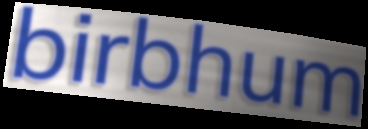
birbhum